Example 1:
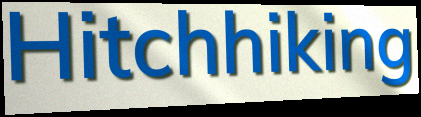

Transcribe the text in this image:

Hitchhiking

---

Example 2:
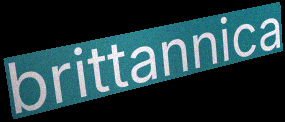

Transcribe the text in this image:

brittannica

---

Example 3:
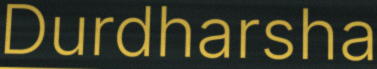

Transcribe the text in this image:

Durdharsha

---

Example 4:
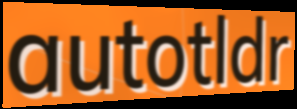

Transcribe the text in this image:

autotldr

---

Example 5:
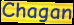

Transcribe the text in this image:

Chagan